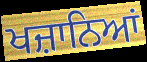
ਖਜ਼ਾਨਿਆਂ